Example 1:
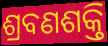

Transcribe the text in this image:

ଶ୍ରବଣଶକ୍ତି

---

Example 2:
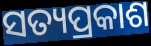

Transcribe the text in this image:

ସତ୍ୟପ୍ରକାଶ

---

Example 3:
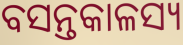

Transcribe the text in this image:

ବସନ୍ତକାଳସ୍ୟ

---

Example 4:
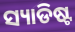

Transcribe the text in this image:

ସ୍ୟାଡିଷ୍ଟ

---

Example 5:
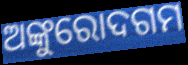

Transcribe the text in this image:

ଅଙ୍କୁରୋଦଗମ